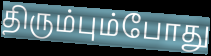
திரும்பும்போது